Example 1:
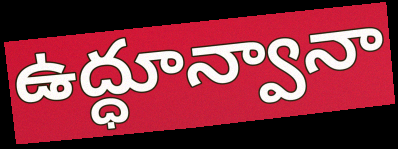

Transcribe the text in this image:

ఉద్ధూన్వానా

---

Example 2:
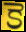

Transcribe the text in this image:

కె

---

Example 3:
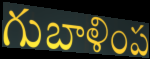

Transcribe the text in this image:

గుబాళింప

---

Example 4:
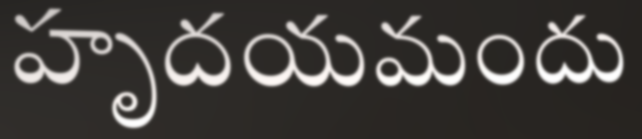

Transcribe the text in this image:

హృదయమందు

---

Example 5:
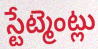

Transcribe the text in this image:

స్టేట్మెంట్లు